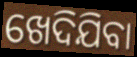
ଖେଦିଯିବା